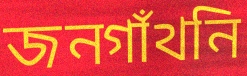
জনগাঁথনি